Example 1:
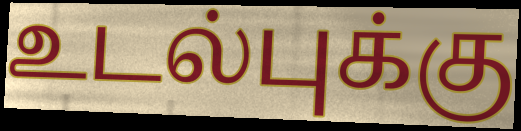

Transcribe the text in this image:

உடல்புக்கு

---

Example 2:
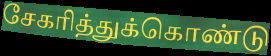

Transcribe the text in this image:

சேகரித்துக்கொண்டு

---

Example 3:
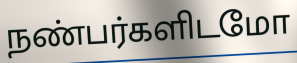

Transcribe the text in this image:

நண்பர்களிடமோ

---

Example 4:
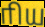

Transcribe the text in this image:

ரிய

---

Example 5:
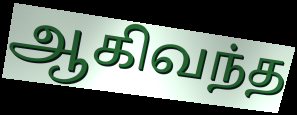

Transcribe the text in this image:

ஆகிவந்த